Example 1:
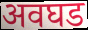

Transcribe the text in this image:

अवघड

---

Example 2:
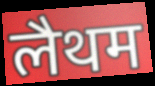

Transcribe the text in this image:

लैथम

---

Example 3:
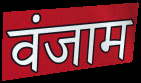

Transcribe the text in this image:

वंजाम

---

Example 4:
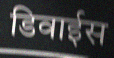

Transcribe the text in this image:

डिवाईस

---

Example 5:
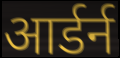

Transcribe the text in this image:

आर्डर्न